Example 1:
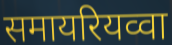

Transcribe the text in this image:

समायरियव्वा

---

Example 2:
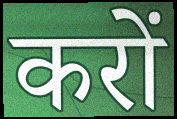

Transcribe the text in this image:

करों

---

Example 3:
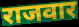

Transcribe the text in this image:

राजवार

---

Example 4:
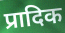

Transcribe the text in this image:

प्रादिक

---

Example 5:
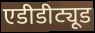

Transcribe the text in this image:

एडीडीट्यूड